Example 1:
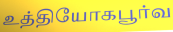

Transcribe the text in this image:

உத்தியோகபூர்வ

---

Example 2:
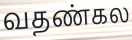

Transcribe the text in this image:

வதண்கல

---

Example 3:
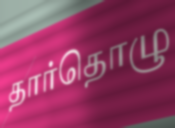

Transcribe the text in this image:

தார்தொழு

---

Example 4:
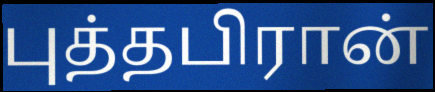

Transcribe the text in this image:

புத்தபிரான்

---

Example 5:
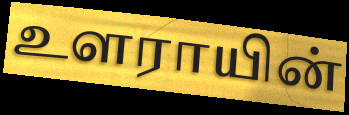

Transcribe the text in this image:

உளராயின்